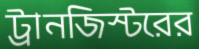
ট্রানজিস্টরের